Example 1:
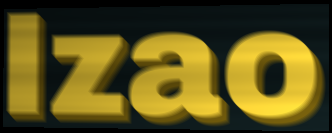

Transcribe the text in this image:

Izao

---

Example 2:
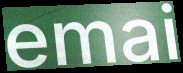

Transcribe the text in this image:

emai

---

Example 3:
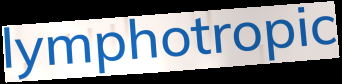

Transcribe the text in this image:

lymphotropic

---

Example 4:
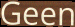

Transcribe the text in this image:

Geen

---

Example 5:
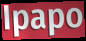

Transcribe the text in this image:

Ipapo